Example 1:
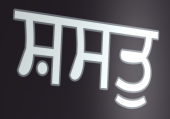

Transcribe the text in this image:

ਸ਼ਸਤੁ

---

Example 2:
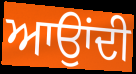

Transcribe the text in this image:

ਆਉਾਂਦੀ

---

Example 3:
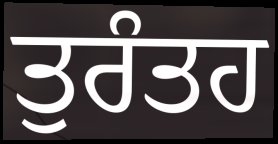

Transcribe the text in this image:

ਤੁਰੰਤਹ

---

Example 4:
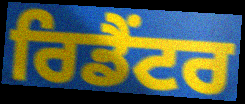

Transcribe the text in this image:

ਰਿਡੈਂਟਰ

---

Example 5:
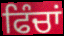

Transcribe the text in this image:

ਫਿੰਚਾਂ